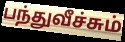
பந்துவீச்சும்